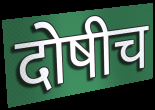
दोषीच